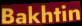
Bakhtin